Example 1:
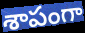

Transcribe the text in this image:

శాపంగా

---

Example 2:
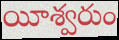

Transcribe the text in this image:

యీశ్వరుం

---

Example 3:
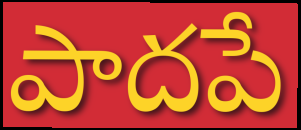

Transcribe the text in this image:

పాదపే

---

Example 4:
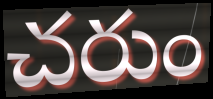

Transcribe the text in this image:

చరుం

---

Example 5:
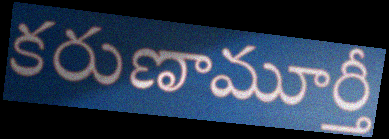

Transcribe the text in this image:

కరుణామూర్తీ